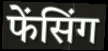
फेंसिंग